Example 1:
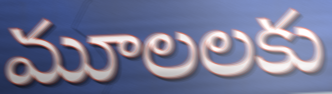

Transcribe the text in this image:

మూలలకు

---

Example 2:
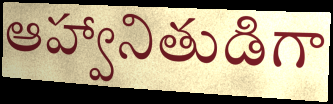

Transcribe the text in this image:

ఆహ్వానితుడిగా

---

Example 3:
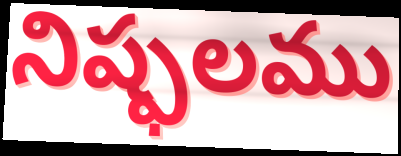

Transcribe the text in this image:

నిష్ఫలము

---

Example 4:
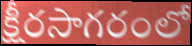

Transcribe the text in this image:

క్షీరసాగరంలో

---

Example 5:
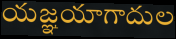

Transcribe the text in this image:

యజ్ఞయాగాదుల